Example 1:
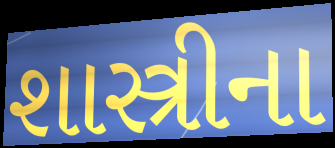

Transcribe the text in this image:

શાસ્ત્રીના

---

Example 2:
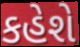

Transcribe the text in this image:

કહેશે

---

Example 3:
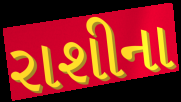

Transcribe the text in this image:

રાશીના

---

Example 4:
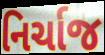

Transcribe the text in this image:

નિર્ચાજ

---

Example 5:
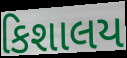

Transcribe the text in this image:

કિશાલય